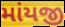
માંયજી